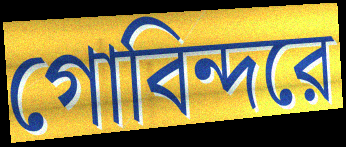
গোবিন্দরে